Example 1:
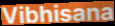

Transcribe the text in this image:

Vibhisana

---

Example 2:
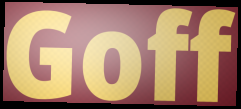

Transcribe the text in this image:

Goff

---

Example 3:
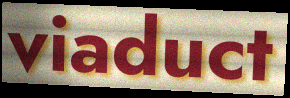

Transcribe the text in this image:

viaduct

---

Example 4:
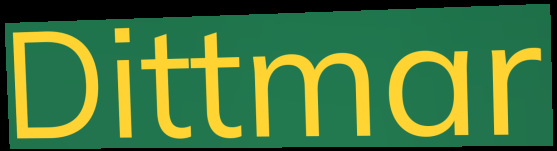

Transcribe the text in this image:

Dittmar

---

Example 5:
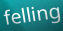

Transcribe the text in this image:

felling